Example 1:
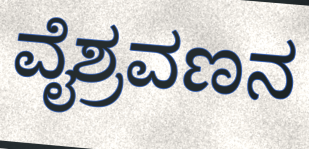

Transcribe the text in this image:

ವೈಶ್ರವಣನ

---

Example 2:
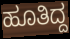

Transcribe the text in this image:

ಹೂತಿದ್ದ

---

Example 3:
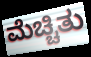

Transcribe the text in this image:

ಮೆಚ್ಚಿತು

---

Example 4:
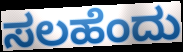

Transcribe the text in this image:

ಸಲಹೆಂದು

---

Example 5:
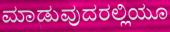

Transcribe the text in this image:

ಮಾಡುವುದರಲ್ಲಿಯೂ